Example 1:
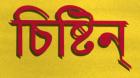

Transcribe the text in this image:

চিষ্টিন্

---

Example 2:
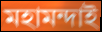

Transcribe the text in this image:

মহামন্দাই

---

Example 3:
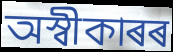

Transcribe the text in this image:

অস্বীকাৰৰ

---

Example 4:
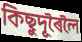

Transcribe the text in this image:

কিছুদূৰৈলৈ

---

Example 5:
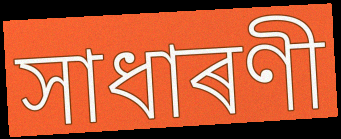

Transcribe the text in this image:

সাধাৰণী